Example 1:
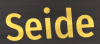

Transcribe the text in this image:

Seide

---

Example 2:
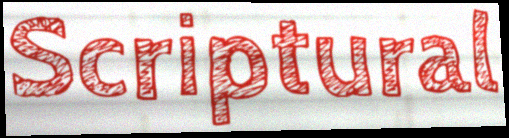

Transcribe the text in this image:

Scriptural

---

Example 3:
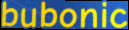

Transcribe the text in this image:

bubonic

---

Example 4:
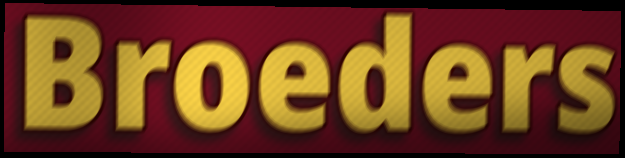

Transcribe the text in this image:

Broeders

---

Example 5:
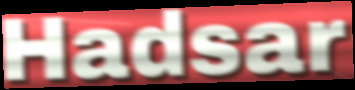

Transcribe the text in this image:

Hadsar